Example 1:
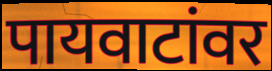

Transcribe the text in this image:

पायवाटांवर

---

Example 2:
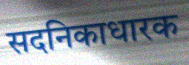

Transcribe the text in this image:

सदनिकाधारक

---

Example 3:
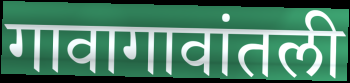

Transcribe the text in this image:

गावागावांतली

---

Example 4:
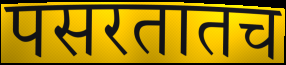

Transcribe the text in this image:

पसरतातच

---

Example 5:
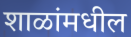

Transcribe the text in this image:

शाळांमधील